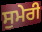
ਸੁਮੇਰੀ